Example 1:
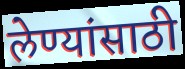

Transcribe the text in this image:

लेण्यांसाठी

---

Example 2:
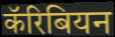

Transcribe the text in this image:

कॅरिबियन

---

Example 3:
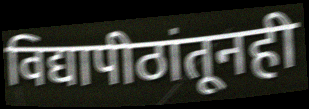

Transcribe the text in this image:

विद्यापीठांतूनही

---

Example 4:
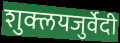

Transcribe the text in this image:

शुक्लयजुर्वेदी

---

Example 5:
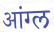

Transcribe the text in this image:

आंग्ल